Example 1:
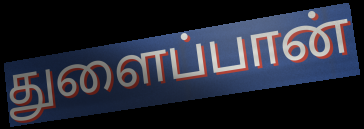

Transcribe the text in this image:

துளைப்பான்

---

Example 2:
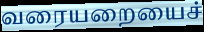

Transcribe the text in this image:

வரையறையைச்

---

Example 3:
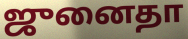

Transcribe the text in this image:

ஜுனைதா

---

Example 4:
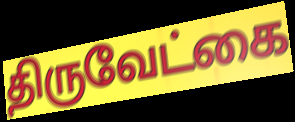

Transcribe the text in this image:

திருவேட்கை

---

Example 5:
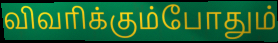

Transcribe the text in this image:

விவரிக்கும்போதும்